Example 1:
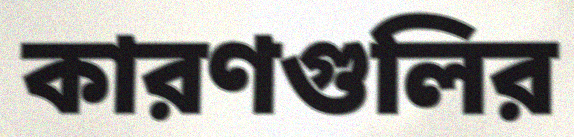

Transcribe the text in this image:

কারণগুলির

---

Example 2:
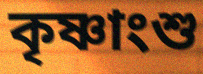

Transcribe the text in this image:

কৃষ্ণাংশু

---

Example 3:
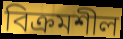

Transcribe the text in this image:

বিক্রমশীল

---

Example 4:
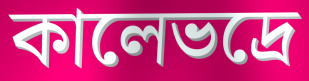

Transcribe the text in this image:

কালেভদ্রে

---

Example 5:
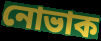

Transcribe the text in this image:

নোভাক